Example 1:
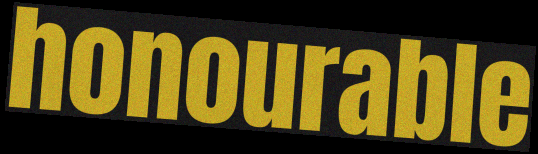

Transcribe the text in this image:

honourable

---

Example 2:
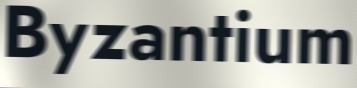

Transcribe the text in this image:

Byzantium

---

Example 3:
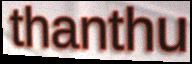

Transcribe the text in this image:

thanthu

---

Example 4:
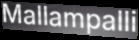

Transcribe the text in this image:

Mallampalli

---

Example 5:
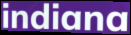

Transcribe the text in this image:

indiana